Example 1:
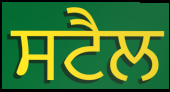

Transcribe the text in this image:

ਸਟੈਲ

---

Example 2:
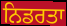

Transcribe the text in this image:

ਨਿਡਰਤਾ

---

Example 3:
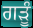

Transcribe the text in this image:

ਗੜੂੰ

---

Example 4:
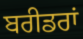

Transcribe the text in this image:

ਬਰੀਡਰਾਂ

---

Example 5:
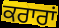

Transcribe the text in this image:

ਕਰਾਰਾਂ